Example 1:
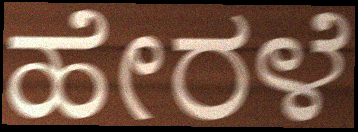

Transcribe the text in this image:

ಹೇರಳೆ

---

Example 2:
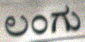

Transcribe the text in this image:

ಲಂಗು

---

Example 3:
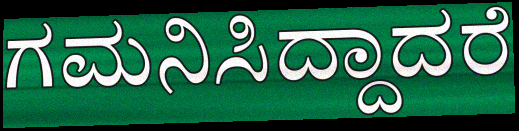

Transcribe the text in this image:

ಗಮನಿಸಿದ್ದಾದರೆ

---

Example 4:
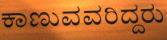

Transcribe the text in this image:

ಕಾಣುವವರಿದ್ದರು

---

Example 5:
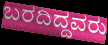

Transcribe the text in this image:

ಬರದಿದ್ದವರು